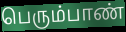
பெரும்பாண்